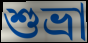
শুভ্রা